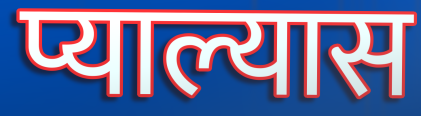
प्याल्यास